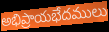
అభిప్రాయభేదములు